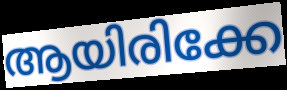
ആയിരിക്കേ